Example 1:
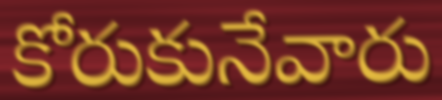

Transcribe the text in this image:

కోరుకునేవారు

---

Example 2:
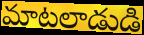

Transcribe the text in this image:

మాటలాడుడి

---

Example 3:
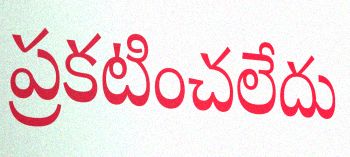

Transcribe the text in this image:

ప్రకటించలేదు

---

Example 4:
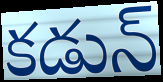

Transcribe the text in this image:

కడున్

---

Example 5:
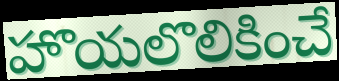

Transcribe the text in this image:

హొయలొలికించే